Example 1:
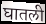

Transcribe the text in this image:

घातली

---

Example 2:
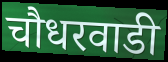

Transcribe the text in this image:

चौधरवाडी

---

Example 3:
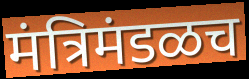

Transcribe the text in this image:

मंत्रिमंडळच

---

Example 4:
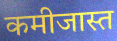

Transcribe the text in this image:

कमीजास्त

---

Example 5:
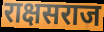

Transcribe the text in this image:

राक्षसराज